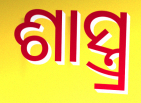
ଶାସ୍ତ୍ର୍ର